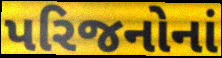
પરિજનોનાં